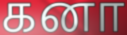
கனா